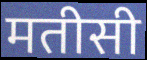
मतीसी